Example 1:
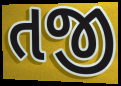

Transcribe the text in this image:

તજી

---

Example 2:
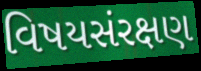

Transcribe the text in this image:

વિષયસંરક્ષણ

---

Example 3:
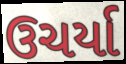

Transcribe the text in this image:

ઉચર્યા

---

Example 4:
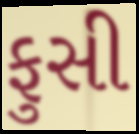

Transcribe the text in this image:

ફુસી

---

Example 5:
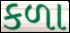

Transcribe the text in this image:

કળા